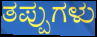
ತಪ್ಪುಗಳು